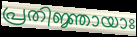
പ്രതിജ്ഞായാഃ